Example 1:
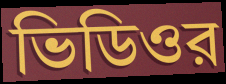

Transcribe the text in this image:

ভিডিওর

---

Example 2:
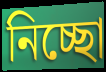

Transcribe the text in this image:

নিচ্ছো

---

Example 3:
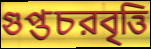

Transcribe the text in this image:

গুপ্তচরবৃত্তি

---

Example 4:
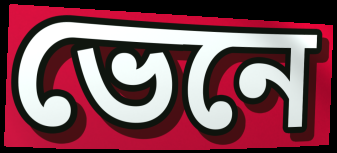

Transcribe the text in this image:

ভেনে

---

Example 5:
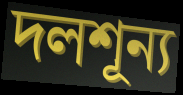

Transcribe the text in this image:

দলশূন্য